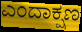
ಎಂದಾಕ್ಷಣ